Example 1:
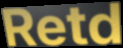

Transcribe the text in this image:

Retd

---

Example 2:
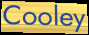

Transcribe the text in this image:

Cooley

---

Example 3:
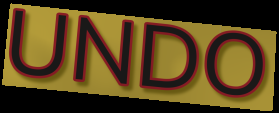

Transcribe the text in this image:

UNDO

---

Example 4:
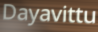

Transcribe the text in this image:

Dayavittu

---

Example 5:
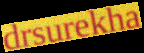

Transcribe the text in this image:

drsurekha